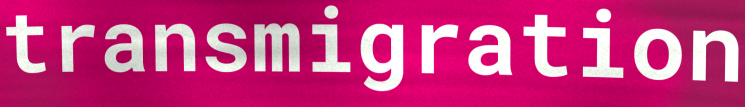
transmigration